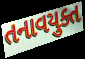
તનાવયુક્ત